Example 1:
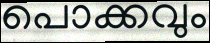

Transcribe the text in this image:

പൊക്കവും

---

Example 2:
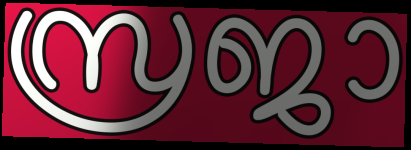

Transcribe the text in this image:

സ്രജാ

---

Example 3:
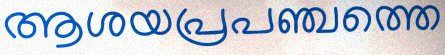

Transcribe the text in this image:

ആശയപ്രപഞ്ചത്തെ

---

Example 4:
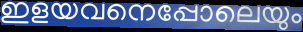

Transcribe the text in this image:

ഇളയവനെപ്പോലെയും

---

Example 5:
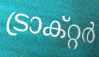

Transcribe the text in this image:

ട്രാക്റ്റർ